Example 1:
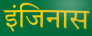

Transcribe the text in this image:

इंजिनास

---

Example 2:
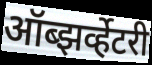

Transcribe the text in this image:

ऑब्झर्व्हेटरी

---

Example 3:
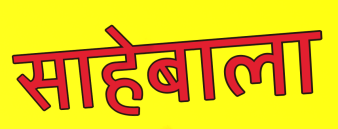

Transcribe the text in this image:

साहेबाला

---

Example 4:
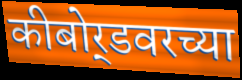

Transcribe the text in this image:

कीबोर्डवरच्या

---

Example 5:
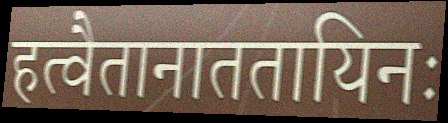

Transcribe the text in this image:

हत्वैतानाततायिनः